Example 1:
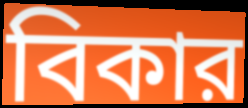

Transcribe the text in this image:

বিকার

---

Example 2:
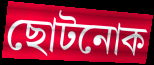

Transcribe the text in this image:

ছোটনোক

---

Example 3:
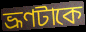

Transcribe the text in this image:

ভ্রূণটাকে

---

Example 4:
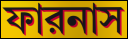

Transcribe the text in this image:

ফারনাস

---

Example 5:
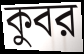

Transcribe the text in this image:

কুবর